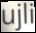
ujli